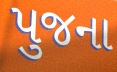
પુજના